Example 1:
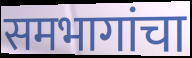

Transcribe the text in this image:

समभागांचा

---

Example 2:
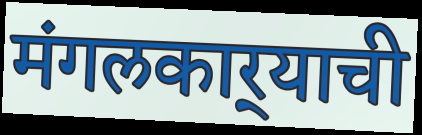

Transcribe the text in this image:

मंगलकार्याची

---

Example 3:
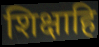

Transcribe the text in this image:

शिक्षाहि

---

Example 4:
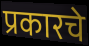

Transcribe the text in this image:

प्रकारचे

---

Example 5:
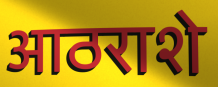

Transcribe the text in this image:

आठराशे